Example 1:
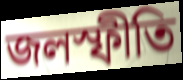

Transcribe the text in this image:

জলস্ফীতি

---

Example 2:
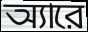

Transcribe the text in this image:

অ্যারে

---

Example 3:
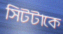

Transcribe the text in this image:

সিটটাকে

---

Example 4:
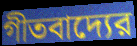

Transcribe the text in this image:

গীতবাদ্যের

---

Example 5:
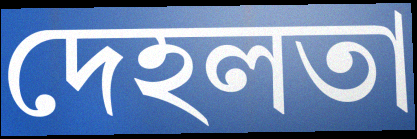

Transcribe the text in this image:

দেহলতা